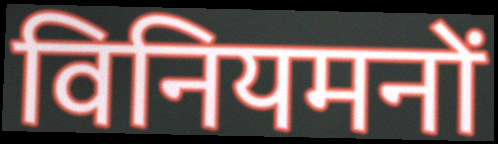
विनियमनों